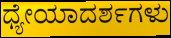
ಧ್ಯೇಯಾದರ್ಶಗಳು